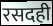
रसदही